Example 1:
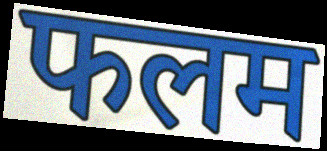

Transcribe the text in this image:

फलम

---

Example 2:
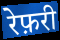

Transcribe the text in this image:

रेफ़री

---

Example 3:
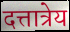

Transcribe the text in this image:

दत्तात्रेय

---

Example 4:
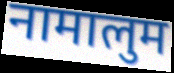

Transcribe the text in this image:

नामालुम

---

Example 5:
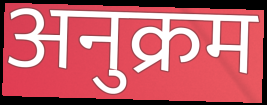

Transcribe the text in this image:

अनुक्रम